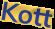
Kott